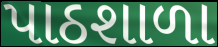
પાઠશાળા